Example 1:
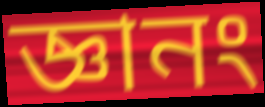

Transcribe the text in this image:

জ্ঞানং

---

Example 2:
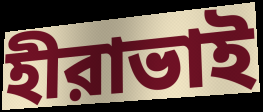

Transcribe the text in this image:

হীরাভাই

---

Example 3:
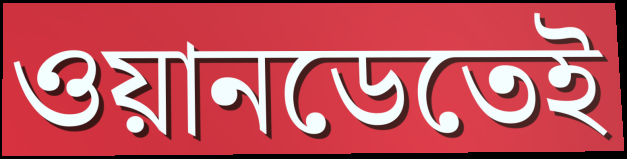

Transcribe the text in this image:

ওয়ানডেতেই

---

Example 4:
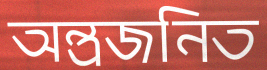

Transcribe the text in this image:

অন্ত্রজনিত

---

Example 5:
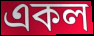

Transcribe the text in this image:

একল